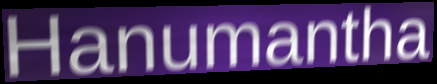
Hanumantha